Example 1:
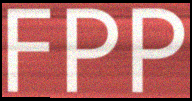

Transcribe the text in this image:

FPP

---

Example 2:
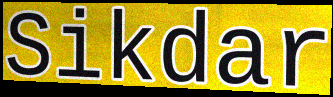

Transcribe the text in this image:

Sikdar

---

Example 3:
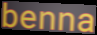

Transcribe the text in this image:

benna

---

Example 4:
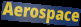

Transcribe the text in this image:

Aerospace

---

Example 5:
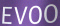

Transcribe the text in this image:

EVOO